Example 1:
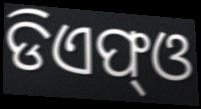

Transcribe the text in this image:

ଡିଏଫ୍ଓ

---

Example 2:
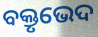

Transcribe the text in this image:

ବକ୍ତୃଭେଦ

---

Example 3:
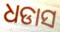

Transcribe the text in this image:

ଧଡାସ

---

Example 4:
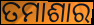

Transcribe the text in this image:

ତମାଶାର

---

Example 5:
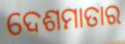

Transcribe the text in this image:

ଦେଶମାତାର